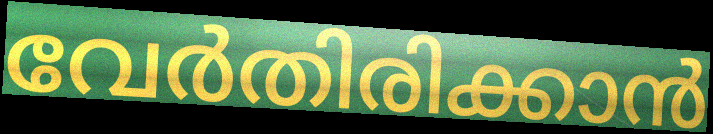
വേർതിരിക്കാൻ